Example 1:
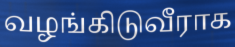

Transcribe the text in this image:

வழங்கிடுவீராக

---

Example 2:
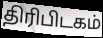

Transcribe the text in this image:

திரிபிடகம்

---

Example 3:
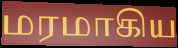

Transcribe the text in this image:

மரமாகிய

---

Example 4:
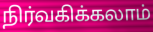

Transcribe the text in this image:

நிர்வகிக்கலாம்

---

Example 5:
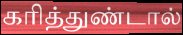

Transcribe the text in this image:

கரித்துண்டால்